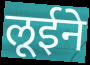
लूईने